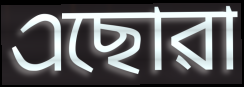
এছোৱা